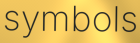
symbols